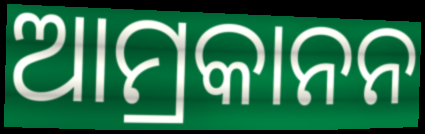
ଆମ୍ରକାନନ